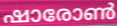
ഷാരോൺ